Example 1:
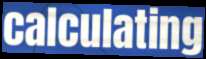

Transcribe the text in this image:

calculating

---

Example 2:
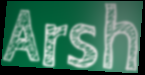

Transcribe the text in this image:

Arsh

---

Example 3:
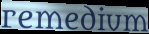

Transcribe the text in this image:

remedium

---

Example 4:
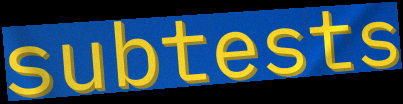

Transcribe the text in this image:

subtests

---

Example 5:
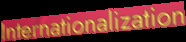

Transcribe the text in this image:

Internationalization